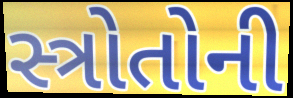
સ્ત્રોતોની